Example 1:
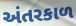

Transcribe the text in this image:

અંતરકાળ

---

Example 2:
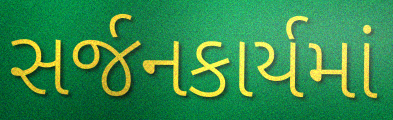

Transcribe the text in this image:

સર્જનકાર્યમાં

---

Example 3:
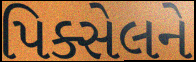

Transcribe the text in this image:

પિક્સેલને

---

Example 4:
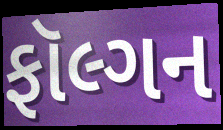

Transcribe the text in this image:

ફૉલ્ગન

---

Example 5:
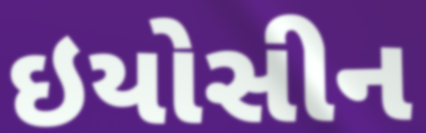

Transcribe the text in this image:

ઇયોસીન